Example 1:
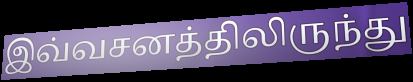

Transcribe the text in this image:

இவ்வசனத்திலிருந்து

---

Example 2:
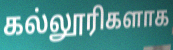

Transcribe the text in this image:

கல்லூரிகளாக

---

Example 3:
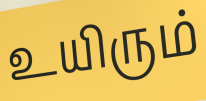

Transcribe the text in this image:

உயிரும்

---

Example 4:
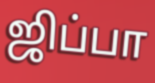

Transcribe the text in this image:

ஜிப்பா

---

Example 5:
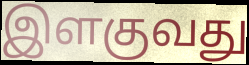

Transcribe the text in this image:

இளகுவது